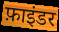
फ़ाइंडर